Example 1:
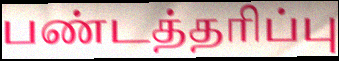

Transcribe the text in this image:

பண்டத்தரிப்பு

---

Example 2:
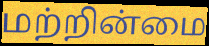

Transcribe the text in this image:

மற்றின்மை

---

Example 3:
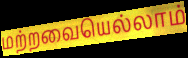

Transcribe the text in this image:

மற்றவையெல்லாம்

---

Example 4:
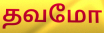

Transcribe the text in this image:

தவமோ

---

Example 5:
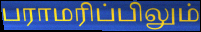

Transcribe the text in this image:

பராமரிப்பிலும்